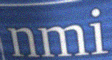
nmi